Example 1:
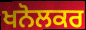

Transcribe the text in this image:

ਖਨੋਲਕਰ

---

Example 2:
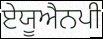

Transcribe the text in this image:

ਏਯੂਐਨਪੀ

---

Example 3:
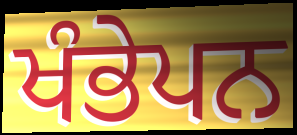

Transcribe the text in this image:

ਖੰਭੇਪਨ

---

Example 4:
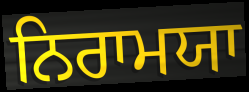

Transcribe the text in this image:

ਨਿਰਾਮਯਾ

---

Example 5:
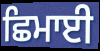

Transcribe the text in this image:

ਛਿਮਾਈ